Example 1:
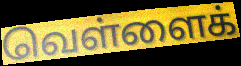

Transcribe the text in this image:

வெள்ளைக்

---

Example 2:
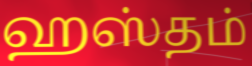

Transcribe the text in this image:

ஹஸ்தம்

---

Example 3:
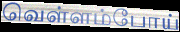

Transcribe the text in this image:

வெள்ளம்போய்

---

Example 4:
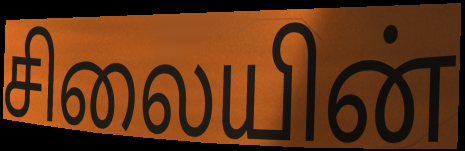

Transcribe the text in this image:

சிலையின்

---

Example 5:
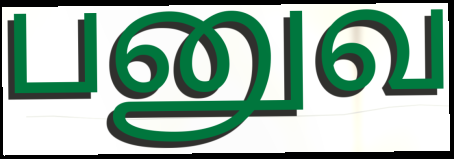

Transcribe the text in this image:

பனுவ